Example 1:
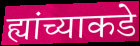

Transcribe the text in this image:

ह्यांच्याकडे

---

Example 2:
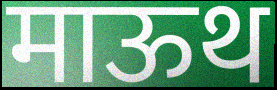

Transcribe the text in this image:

माऊथ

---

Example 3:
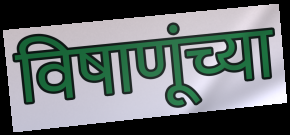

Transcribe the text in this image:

विषाणूंच्या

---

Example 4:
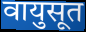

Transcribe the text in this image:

वायुसूत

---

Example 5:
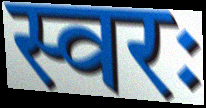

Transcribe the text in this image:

स्वरः